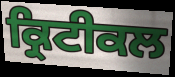
ਕ੍ਰਿਟੀਕਲ